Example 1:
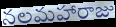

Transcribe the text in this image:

నలమహారాజు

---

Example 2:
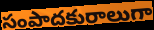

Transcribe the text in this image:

సంపాదకురాలుగా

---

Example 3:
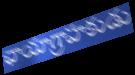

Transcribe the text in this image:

ఛాయాగ్రాహకుడు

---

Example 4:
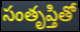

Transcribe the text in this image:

సంతృప్తితో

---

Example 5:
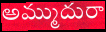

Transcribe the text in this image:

అమ్ముదురా